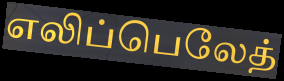
எலிப்பெலேத்